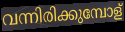
വന്നിരിക്കുമ്പോള്